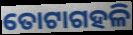
ତୋଟାଗହଳି